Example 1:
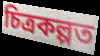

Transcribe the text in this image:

চিত্ৰকল্পত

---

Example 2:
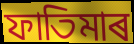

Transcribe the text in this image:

ফাতিমাৰ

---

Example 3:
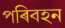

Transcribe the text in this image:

পৰিবহন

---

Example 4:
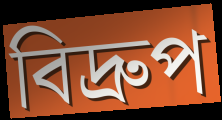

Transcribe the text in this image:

বিদ্ৰুপ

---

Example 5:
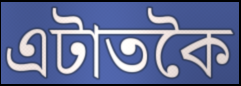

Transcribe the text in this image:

এটাতকৈ